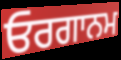
ਓਰਗਾਨਮ